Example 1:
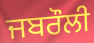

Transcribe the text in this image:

ਜਬਰੌਲੀ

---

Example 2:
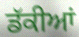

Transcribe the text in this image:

ਡੱਕੀਆਂ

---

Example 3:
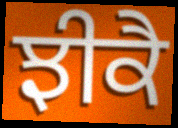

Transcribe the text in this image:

ਝੀਕੈ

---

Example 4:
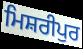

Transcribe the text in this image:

ਮਿਸ਼ਰੀਪੁਰ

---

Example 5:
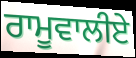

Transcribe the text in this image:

ਰਾਮੂਵਾਲੀਏ